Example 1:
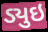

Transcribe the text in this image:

ડ્યુઇ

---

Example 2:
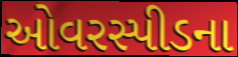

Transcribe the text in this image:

ઓવરસ્પીડના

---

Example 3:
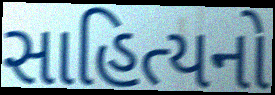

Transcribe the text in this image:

સાહિત્યનો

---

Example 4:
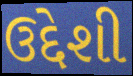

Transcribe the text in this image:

ઉદ્દેશી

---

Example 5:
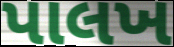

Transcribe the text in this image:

પાલખ